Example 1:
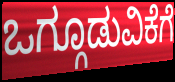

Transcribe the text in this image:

ಒಗ್ಗೂಡುವಿಕೆಗೆ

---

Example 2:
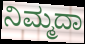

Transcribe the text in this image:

ನಿಮ್ಮದಾ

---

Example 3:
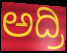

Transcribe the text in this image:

ಅದ್ರಿ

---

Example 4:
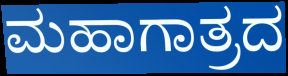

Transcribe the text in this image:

ಮಹಾಗಾತ್ರದ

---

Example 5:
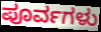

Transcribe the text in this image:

ಪೂರ್ವಗಳು